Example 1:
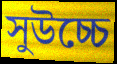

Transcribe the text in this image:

সুউচ্চে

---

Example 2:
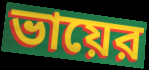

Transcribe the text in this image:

ভায়ের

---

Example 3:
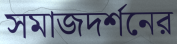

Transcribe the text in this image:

সমাজদর্শনের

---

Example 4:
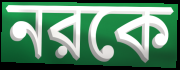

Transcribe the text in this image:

নরকে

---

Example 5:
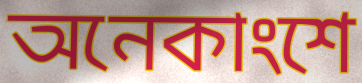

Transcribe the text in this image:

অনেকাংশে